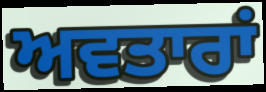
ਅਵਤਾਰਾਂ